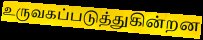
உருவகப்படுத்துகின்றன